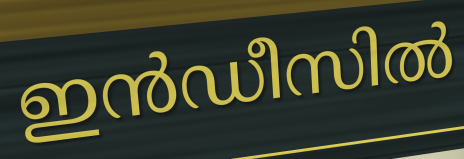
ഇൻഡീസിൽ